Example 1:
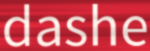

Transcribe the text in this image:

dashe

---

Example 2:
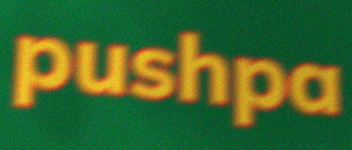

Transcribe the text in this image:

pushpa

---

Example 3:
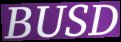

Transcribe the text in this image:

BUSD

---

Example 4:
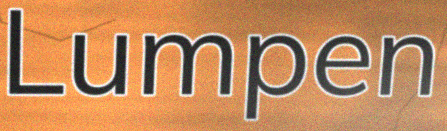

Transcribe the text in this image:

Lumpen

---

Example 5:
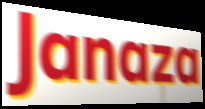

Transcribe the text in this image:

Janaza